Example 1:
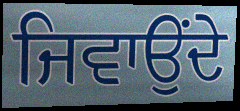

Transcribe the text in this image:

ਜਿਵਾਉਂਦੇ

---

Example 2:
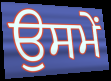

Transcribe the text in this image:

ਉਸਮੇਂ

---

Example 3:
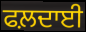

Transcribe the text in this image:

ਫਲ਼ਦਾਈ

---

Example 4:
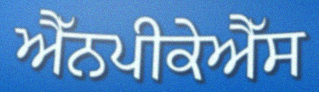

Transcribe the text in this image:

ਐੱਨਪੀਕੇਐੱਸ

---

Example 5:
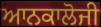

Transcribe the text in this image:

ਆਨਕਾਲੋਜੀ